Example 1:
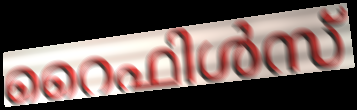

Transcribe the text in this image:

റൈഫിൾസ്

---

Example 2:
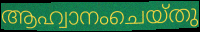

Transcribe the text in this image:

ആഹ്വാനംചെയ്തു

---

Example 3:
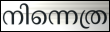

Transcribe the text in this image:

നിന്നെത്ര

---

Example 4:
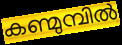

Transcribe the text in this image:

കണ്മുമ്പിൽ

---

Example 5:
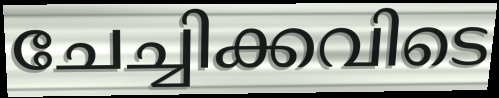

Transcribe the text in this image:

ചേച്ചിക്കവിടെ